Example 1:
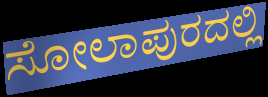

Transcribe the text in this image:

ಸೋಲಾಪುರದಲ್ಲಿ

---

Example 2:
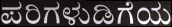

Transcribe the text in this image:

ಪರಿಗಳುಡಿಗೆಯ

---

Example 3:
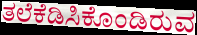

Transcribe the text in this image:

ತಲೆಕೆಡಿಸಿಕೊಂಡಿರುವ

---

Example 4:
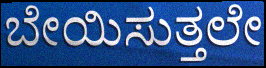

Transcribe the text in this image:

ಬೇಯಿಸುತ್ತಲೇ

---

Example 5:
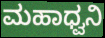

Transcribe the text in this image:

ಮಹಾಧ್ವನಿ